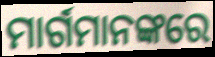
ମାର୍ଗମାନଙ୍କରେ